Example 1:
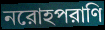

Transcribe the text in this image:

নরোহপরাণি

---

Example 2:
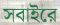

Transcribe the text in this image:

সবাইরে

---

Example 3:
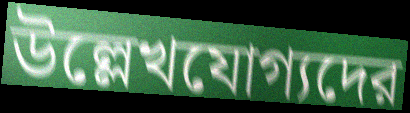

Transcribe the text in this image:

উল্লেখযোগ্যদের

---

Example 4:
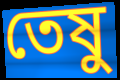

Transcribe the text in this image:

তেষু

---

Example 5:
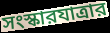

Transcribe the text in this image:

সংস্কারযাত্রার